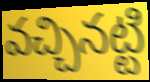
వచ్చినట్టి